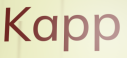
Kapp